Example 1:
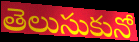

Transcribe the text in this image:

తెలుసుకునో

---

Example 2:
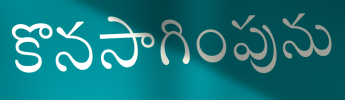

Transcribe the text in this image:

కొనసాగింపును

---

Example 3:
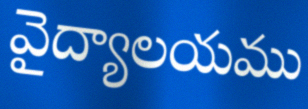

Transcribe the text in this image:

వైద్యాలయము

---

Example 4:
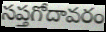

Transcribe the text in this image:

సప్తగోదావరం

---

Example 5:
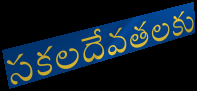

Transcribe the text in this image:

సకలదేవతలకు